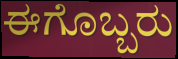
ಈಗೊಬ್ಬರು